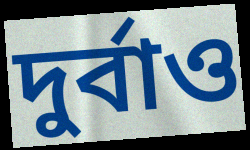
দুর্বাও